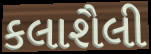
કલાશૈલી